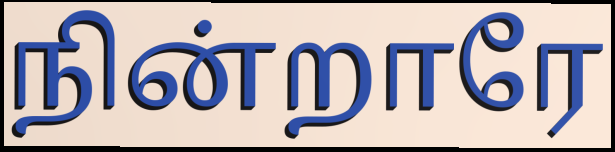
நின்றாரே